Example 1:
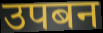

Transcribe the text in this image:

उपबन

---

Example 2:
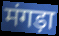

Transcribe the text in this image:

मंगड़ा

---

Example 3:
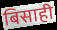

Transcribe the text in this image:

बिसाही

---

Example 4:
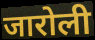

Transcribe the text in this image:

जारोली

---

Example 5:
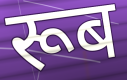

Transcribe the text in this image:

रूब